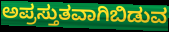
ಅಪ್ರಸ್ತುತವಾಗಿಬಿಡುವ